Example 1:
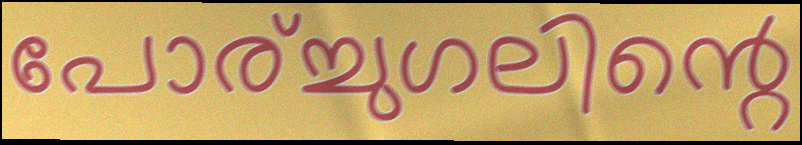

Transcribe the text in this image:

പോര്ച്ചുഗലിന്റെ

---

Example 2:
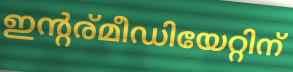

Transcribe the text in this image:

ഇന്റര്മീഡിയേറ്റിന്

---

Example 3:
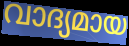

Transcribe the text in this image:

വാദ്യമായ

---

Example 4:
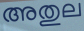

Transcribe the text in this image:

അതുല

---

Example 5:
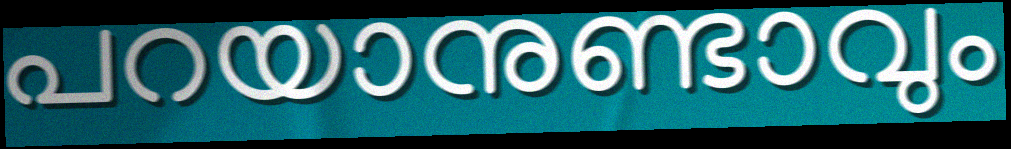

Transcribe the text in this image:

പറയാനുണ്ടാവും